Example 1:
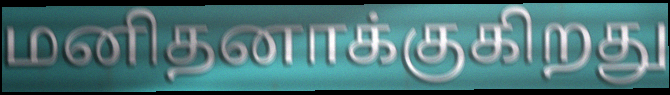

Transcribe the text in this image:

மனிதனாக்குகிறது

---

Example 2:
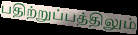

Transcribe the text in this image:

பதிற்றுப்பத்திலும்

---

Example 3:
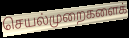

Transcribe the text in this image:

செயல்முறைகளைக்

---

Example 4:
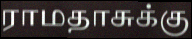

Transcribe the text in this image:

ராமதாசுக்கு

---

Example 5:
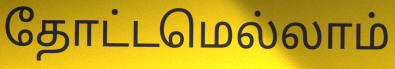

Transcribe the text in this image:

தோட்டமெல்லாம்